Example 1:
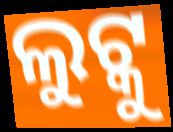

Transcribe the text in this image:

ଲୁଟ୍କୁ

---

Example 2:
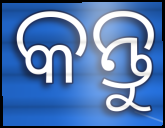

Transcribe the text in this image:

କନ୍ତୁ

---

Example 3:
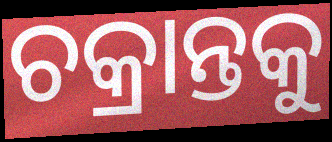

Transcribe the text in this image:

ଚକ୍ରାନ୍ତକୁ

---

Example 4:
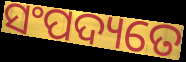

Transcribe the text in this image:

ସଂପଦ୍ୟତେ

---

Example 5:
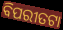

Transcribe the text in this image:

ବିପରୀତଟା